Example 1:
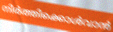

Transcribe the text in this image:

നിർത്തിക്കൊൾവാൻ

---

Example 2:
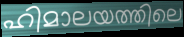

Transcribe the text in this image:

ഹിമാലയത്തിലെ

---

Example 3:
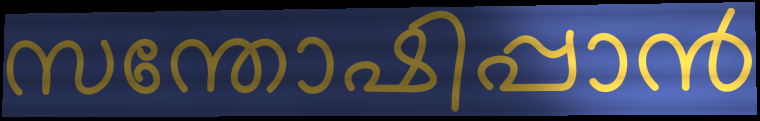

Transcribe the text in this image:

സന്തോഷിപ്പാൻ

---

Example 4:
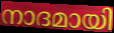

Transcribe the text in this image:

നാദമായി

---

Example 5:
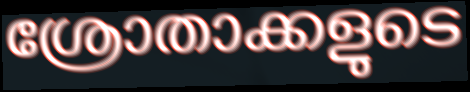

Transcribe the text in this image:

ശ്രോതാക്കളുടെ